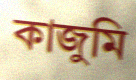
কাজুমি